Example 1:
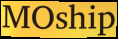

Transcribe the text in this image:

MOship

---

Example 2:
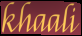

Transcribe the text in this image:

khaali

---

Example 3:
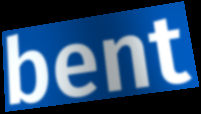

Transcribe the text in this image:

bent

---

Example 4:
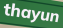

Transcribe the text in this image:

thayun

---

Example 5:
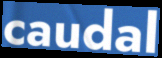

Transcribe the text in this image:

caudal